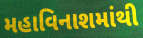
મહાવિનાશમાંથી